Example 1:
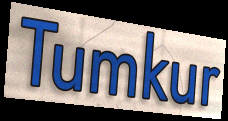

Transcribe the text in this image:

Tumkur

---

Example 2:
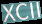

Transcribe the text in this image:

XCII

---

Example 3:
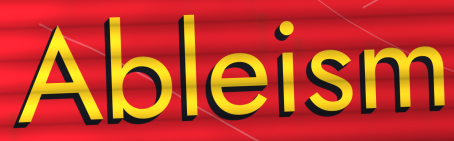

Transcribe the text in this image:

Ableism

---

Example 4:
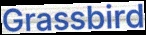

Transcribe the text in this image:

Grassbird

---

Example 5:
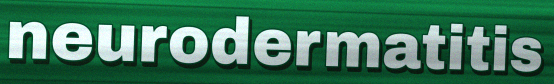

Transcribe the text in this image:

neurodermatitis